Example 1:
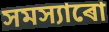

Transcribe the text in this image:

সমস্যাৰো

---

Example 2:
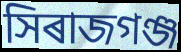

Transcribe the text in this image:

সিৰাজগঞ্জ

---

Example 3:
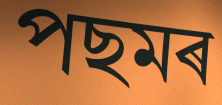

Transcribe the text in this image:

পছমৰ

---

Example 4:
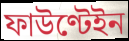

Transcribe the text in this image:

ফাউণ্টেইন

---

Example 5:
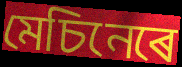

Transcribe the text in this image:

মেচিনেৰে